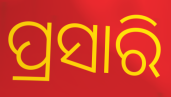
ପ୍ରସାରି